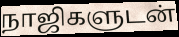
நாஜிகளுடன்